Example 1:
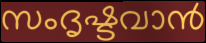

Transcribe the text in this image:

സംദൃഷ്ടവാൻ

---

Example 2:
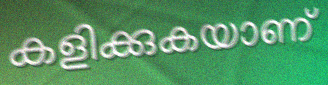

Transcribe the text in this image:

കളിക്കുകയാണ്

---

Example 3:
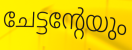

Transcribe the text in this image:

ചേട്ടന്റേയും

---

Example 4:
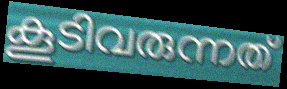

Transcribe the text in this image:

കൂടിവരുന്നത്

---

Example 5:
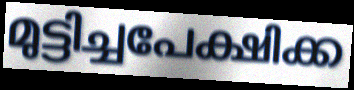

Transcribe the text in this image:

മുട്ടിച്ചപേക്ഷിക്ക